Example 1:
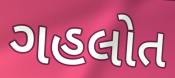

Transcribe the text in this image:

ગહલોત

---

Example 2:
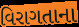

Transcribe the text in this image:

વિરાગતાના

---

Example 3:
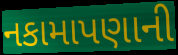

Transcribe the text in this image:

નકામાપણાની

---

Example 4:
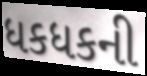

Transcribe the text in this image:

ધકધકની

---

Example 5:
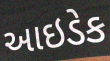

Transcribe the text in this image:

આઇડેક